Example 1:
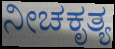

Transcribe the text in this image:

ನೀಚಕೃತ್ಯ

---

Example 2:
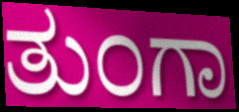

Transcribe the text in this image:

ತುಂಗಾ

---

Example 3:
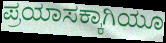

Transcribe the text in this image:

ಪ್ರಯಾಸಕ್ಕಾಗಿಯೂ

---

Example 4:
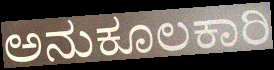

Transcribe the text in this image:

ಅನುಕೂಲಕಾರಿ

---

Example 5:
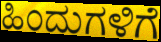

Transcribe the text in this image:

ಹಿಂದುಗಳಿಗೆ